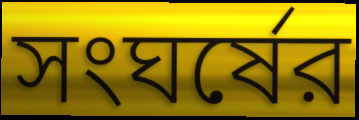
সংঘর্ষের